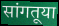
सांगतूया